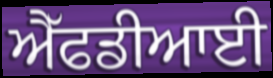
ਐੱਫਡੀਆਈ